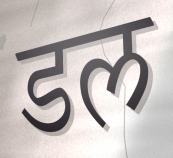
डल